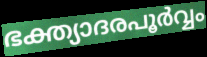
ഭക്ത്യാദരപൂർവ്വം